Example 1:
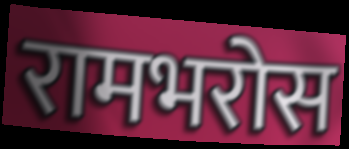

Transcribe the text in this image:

रामभरोस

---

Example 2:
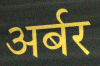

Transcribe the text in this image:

अर्बर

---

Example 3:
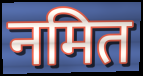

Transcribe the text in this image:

नमित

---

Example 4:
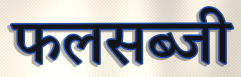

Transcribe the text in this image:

फलसब्जी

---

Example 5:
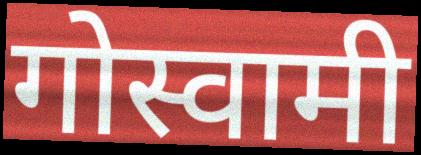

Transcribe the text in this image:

गोस्वामी